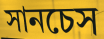
সানচেস